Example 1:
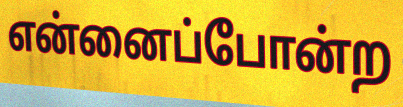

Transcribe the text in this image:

என்னைப்போன்ற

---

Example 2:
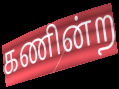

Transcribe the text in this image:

கணின்ற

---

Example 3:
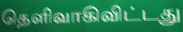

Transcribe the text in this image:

தெளிவாகிவிட்டது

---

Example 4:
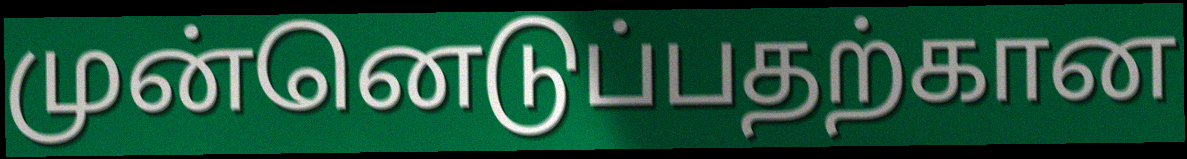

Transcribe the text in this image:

முன்னெடுப்பதற்கான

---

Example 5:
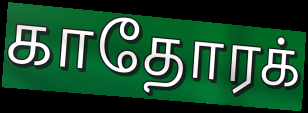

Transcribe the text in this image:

காதோரக்